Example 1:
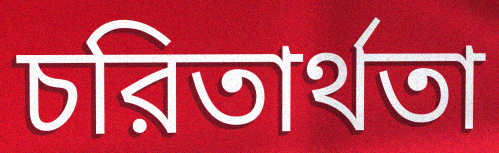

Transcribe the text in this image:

চরিতার্থতা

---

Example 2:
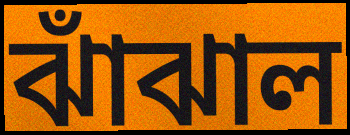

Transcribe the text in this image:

ঝাঁঝাল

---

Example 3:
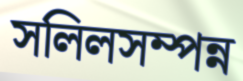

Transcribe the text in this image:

সলিলসম্পন্ন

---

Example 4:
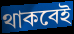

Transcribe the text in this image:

থাকবেই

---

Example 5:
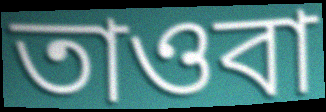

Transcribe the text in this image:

তাওবা